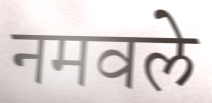
नमवले